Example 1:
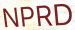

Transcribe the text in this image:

NPRD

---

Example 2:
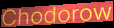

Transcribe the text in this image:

Chodorow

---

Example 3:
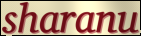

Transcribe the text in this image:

sharanu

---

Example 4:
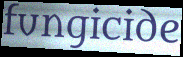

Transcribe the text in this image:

fungicide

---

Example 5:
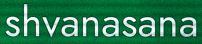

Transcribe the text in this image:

shvanasana